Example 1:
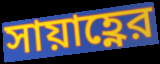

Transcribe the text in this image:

সায়াহ্ণের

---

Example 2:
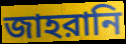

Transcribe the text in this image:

জাহরানি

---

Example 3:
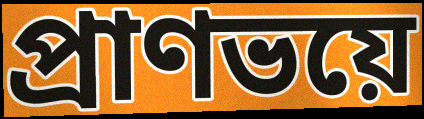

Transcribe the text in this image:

প্রাণভয়ে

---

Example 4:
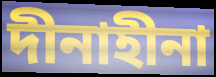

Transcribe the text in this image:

দীনাহীনা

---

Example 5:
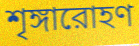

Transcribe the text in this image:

শৃঙ্গারোহণ